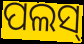
ପଲସ୍